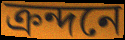
ক্রন্দনে